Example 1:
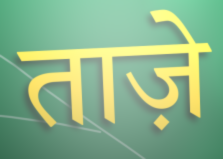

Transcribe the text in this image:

ताज़े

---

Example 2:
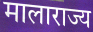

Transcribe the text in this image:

मालाराज्य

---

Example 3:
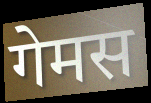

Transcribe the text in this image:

गेमस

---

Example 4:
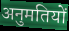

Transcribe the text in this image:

अनुमतियों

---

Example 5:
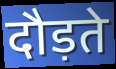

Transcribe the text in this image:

दौड़ते